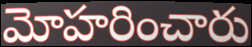
మోహరించారు